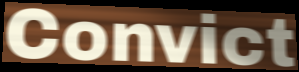
Convict